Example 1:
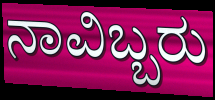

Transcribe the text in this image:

ನಾವಿಬ್ಬರು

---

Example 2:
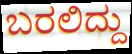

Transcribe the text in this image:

ಬರಲಿದ್ದು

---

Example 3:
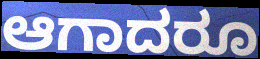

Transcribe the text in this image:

ಆಗಾದರೂ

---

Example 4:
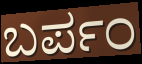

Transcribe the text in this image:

ಬರ್ಪಂ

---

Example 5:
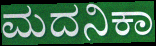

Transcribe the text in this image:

ಮದನಿಕಾ